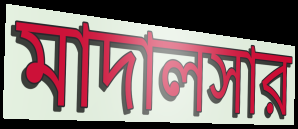
মাদালসার